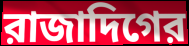
রাজাদিগের